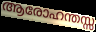
ആരോഹന്തസ്സ